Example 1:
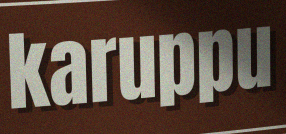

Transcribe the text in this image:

karuppu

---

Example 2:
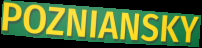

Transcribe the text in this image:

POZNIANSKY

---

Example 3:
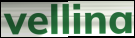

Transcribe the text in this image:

vellina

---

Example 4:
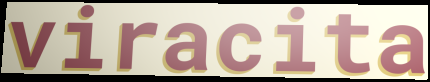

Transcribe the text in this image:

viracita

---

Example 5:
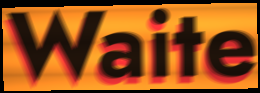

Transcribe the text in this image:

Waite